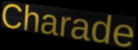
Charade